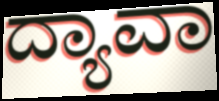
ದ್ಯಾವಾ